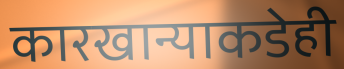
कारखान्याकडेही